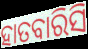
ହାତବାରିସି